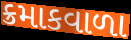
ક્રમાકવાળા